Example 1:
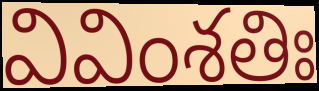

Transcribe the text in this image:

వివింశతిః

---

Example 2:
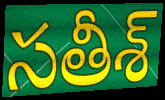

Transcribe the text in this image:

సతీశ్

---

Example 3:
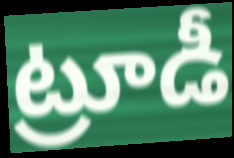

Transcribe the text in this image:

ట్రూడీ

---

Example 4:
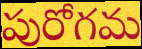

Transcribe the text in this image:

పురోగమ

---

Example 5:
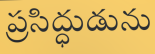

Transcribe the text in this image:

ప్రసిద్ధుడును